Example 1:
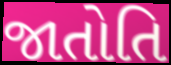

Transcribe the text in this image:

જાતોતિ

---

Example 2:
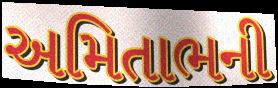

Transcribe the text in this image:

અમિતાભની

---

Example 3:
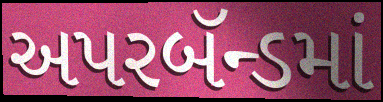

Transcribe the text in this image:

અપરબૅન્ડમાં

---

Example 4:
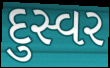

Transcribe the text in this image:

દુસ્વર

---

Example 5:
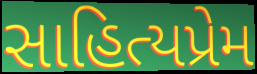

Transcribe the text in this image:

સાહિત્યપ્રેમ